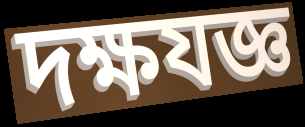
দক্ষযজ্ঞ